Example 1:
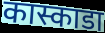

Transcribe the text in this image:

कास्काडा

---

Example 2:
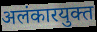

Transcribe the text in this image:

अलंकारयुक्त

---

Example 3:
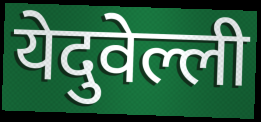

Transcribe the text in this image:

येदुवेल्ली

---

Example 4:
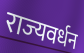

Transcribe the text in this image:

राज्‍यवर्धन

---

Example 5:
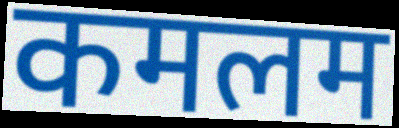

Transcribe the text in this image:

कमलम